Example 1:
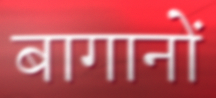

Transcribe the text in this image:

बागानों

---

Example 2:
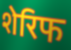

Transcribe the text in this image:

शेरिफ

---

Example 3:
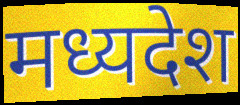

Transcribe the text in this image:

मध्यदेश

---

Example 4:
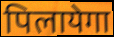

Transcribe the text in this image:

पिलायेगा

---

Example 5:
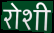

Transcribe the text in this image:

रोशी